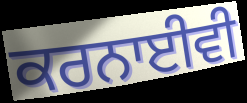
ਕਰਨਾਈਵੀ